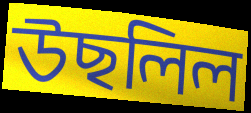
উছলিল